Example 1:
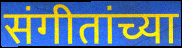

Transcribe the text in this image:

संगीतांच्या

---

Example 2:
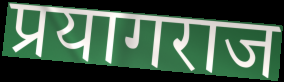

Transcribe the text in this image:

प्रयागराज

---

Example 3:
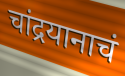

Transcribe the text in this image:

चांद्रयानाचं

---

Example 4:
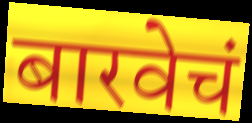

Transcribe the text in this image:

बारवेचं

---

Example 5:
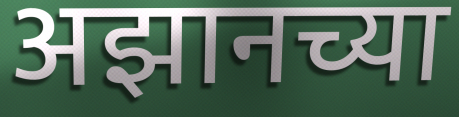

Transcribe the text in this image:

अझानच्या